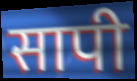
सापी